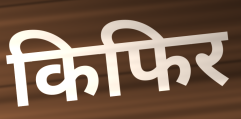
किफिर